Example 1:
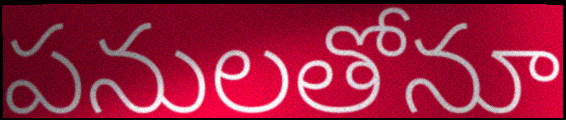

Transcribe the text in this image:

పనులతోనూ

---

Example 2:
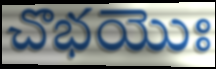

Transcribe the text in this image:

చొభయొః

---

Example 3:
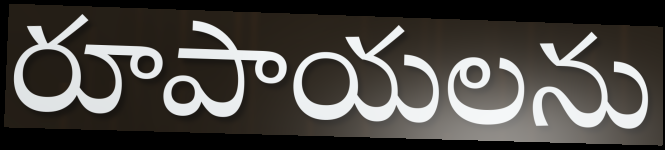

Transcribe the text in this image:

రూపాయలను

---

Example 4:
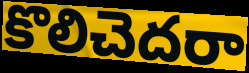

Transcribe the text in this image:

కొలిచెదరా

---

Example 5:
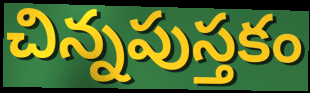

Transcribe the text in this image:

చిన్నపుస్తకం